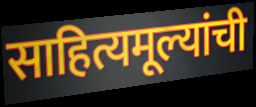
साहित्यमूल्यांची